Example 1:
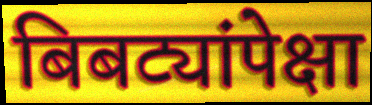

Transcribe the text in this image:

बिबट्यांपेक्षा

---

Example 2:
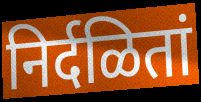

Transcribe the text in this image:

निर्दळितां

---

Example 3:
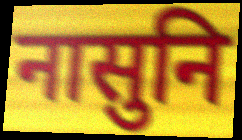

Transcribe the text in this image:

नासुनि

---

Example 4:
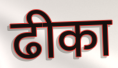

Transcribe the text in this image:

ढीका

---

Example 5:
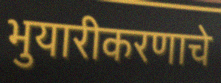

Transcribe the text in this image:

भुयारीकरणाचे